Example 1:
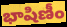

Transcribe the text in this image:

భాషిణీం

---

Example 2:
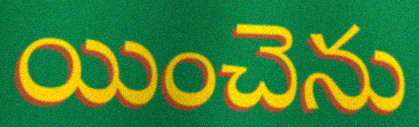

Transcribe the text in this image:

యించెను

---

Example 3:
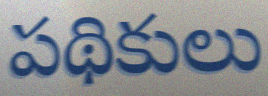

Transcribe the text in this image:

పథికులు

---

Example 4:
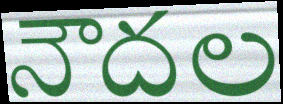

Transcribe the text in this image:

నౌదల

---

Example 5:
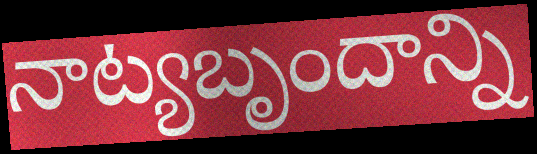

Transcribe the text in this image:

నాట్యబృందాన్ని